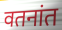
वतनांत